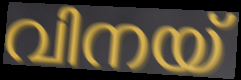
വിനയ്